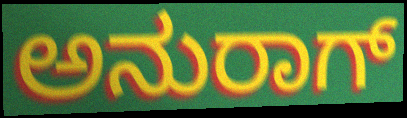
ಅನುರಾಗ್